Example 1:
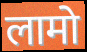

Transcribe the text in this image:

लामो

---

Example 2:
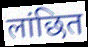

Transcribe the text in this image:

लांछित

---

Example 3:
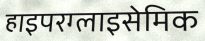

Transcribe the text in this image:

हाइपरग्लाइसेमिक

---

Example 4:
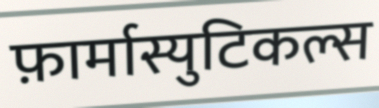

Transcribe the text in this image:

फ़ार्मास्युटिकल्स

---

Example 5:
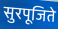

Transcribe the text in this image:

सुरपूजिते